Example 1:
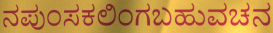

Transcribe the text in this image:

ನಪುಂಸಕಲಿಂಗಬಹುವಚನ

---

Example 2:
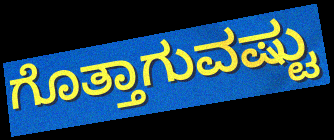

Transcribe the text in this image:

ಗೊತ್ತಾಗುವಷ್ಟು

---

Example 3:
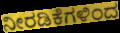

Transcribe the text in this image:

ನೀರಡಿಕೆಗಳಿಂದ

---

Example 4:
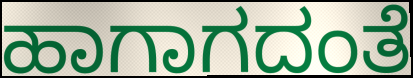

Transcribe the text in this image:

ಹಾಗಾಗದಂತೆ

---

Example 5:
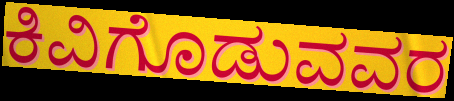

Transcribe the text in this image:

ಕಿವಿಗೊಡುವವರ